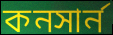
কনসার্ন